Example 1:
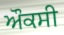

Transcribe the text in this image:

ਔਕਸੀ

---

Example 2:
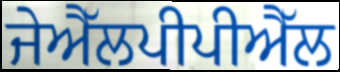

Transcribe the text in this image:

ਜੇਐੱਲਪੀਪੀਐੱਲ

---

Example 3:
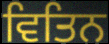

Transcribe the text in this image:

ਵਿਤਿਨ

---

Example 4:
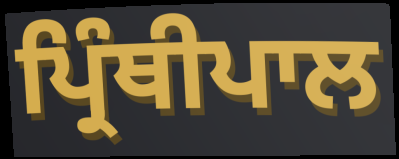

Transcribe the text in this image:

ਪ੍ਰਿੰਥੀਪਾਲ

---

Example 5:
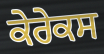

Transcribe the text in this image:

ਕੇਰੇਕਸ